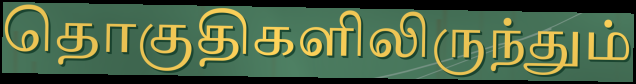
தொகுதிகளிலிருந்தும்